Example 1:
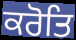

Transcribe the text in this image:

ਕਰੋਤਿ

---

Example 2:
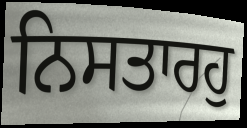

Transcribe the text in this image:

ਨਿਸਤਾਰਹੁ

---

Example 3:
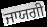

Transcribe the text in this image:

ਜਾਯਗੀ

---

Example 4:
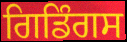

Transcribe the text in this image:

ਗਿਡਿੰਗਸ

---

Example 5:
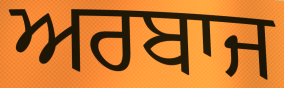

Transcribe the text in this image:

ਅਰਬਾਜ